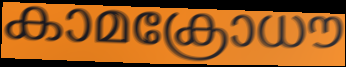
കാമക്രോധൗ